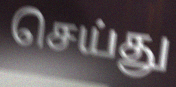
செய்து